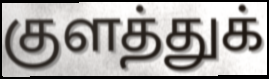
குளத்துக்